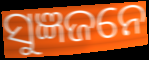
ସୁଜ୍ଞଜନେ